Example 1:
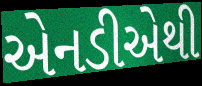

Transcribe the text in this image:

એનડીએથી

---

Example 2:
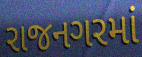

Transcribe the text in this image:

રાજનગરમાં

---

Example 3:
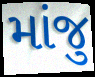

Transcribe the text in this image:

માંજુ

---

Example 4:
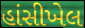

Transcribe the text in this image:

હાંસીખેલ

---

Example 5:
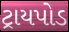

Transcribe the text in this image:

ટ્રાયપોડ